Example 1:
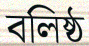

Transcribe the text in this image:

বলিষ্ঠ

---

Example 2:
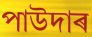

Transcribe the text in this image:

পাউদাৰ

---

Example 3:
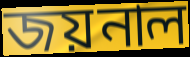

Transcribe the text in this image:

জয়নাল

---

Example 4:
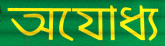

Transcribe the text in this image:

অযোধ্য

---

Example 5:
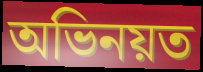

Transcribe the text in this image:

অভিনয়ত